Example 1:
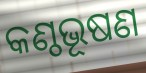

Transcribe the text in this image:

କଣ୍ଠଭୂଷଣ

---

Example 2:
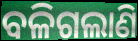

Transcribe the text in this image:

ବଳିଗଲାଣି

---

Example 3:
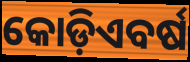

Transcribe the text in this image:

କୋଡ଼ିଏବର୍ଷ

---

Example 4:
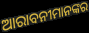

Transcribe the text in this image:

ଆରାବନୀମାନଙ୍କର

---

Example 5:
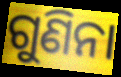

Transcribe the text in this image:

ଗୁଣିନା